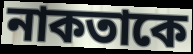
নাকতাকে